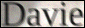
Davie